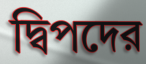
দ্বিপদের